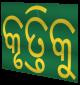
କୃତ୍ତିକୁ